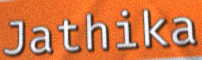
Jathika